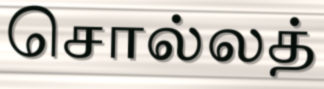
சொல்லத்